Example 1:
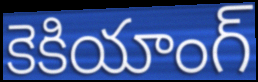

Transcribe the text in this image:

కెకియాంగ్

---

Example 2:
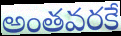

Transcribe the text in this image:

అంతవరకే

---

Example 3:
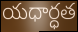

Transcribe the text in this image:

యధార్ధత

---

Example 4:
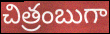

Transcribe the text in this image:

చిత్రంబుగా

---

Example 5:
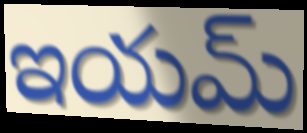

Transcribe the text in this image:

ఇయమ్